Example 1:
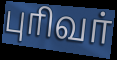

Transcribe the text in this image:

புரிவர்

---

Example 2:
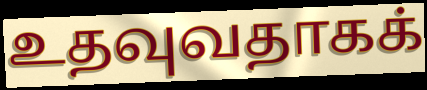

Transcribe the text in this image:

உதவுவதாகக்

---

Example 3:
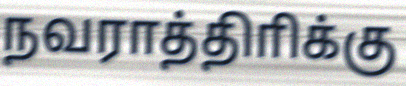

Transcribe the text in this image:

நவராத்திரிக்கு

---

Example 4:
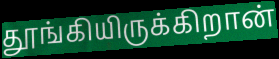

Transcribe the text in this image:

தூங்கியிருக்கிறான்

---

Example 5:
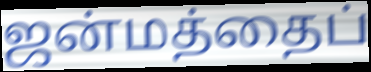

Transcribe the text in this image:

ஜன்மத்தைப்